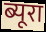
ब्यूरा